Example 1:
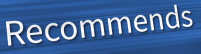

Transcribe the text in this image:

Recommends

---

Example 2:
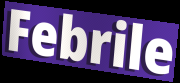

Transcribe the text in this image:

Febrile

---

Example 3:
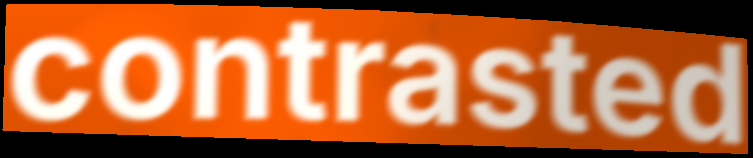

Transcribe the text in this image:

contrasted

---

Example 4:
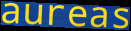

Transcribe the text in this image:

aureas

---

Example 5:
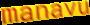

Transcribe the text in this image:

manavu